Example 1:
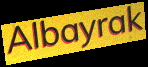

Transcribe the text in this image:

Albayrak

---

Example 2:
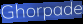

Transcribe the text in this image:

Ghorpade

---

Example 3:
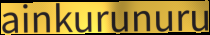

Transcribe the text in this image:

ainkurunuru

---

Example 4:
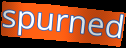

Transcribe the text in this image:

spurned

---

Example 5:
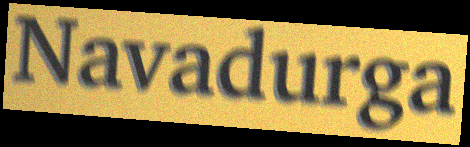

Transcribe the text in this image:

Navadurga